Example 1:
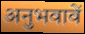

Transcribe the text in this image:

अनुभवावें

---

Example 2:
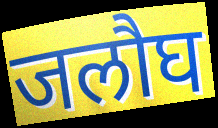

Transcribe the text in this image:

जलौघ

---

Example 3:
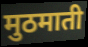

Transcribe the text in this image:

मुठमाती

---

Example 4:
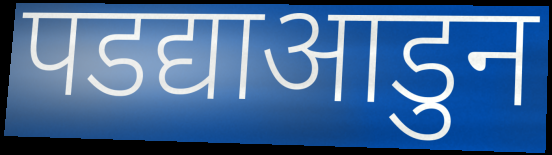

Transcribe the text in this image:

पडद्याआडुन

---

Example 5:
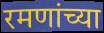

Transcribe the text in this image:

रमणांच्या